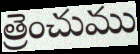
త్రెంచుము